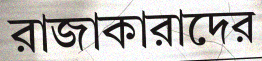
রাজাকারাদের